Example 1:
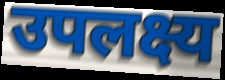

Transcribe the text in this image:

उपलक्ष्य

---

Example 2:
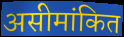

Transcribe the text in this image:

असीमांकित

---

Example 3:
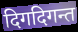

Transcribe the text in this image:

दिगदिगन्त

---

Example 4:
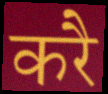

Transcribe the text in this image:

करै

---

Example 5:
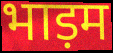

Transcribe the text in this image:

भाड़म